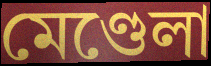
মেণ্ডেলা